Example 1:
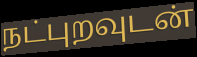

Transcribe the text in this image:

நட்புறவுடன்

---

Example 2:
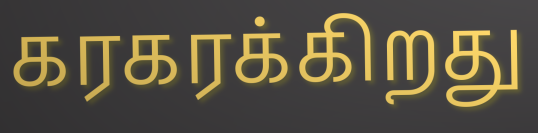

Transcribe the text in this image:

கரகரக்கிறது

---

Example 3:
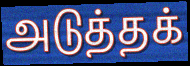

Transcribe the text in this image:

அடுத்தக்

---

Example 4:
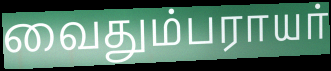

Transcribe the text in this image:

வைதும்பராயர்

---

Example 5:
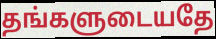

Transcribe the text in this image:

தங்களுடையதே